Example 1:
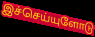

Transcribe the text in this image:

இச்செய்யுளோடு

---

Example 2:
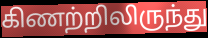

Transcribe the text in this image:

கிணற்றிலிருந்து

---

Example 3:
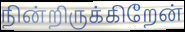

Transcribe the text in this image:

நின்றிருக்கிறேன்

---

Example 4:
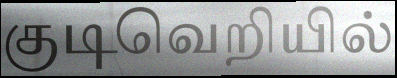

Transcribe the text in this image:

குடிவெறியில்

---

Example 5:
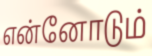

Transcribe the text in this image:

என்னோடும்